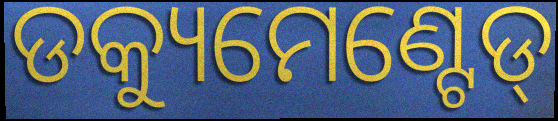
ଡକ୍ୟୁମେଣ୍ଟେଡ୍